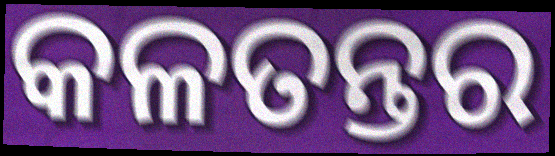
କଳତନ୍ତର